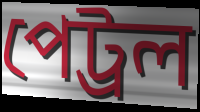
পেট্রল